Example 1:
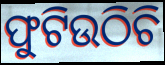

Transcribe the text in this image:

ଫୁଟିଉଠିଚି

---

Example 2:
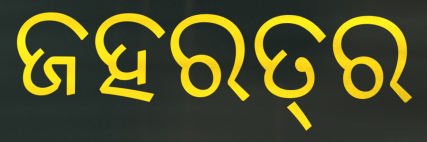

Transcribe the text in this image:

ଜହରତ୍‌ର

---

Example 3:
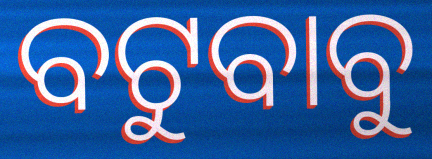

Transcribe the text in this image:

ବଟୁବାବୁ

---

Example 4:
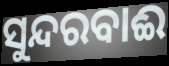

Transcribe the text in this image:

ସୁନ୍ଦରବାଈ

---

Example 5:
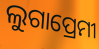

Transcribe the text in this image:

ଲୁଗାପ୍ରେମୀ